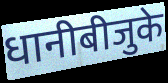
धानीबीजुके